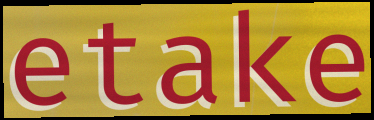
etake